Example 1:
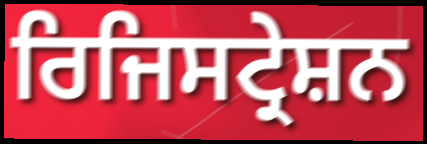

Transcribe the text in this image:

ਰਿਜਿਸਟ੍ਰੇਸ਼ਨ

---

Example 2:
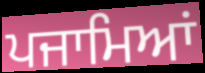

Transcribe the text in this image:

ਪਜਾਮਿਆਂ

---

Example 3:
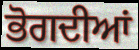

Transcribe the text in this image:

ਭੋਗਦੀਆਂ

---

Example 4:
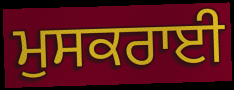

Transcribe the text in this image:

ਮੁਸਕਰਾਈ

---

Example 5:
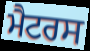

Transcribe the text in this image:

ਮੈਟਰਸ